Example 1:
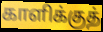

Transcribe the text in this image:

காளிக்குத்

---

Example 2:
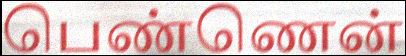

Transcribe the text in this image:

பெண்ணென்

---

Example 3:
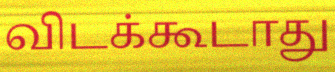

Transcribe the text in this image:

விடக்கூடாது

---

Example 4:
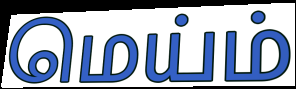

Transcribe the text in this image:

மெய்ம்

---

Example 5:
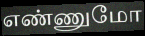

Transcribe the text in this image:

எண்ணுமோ